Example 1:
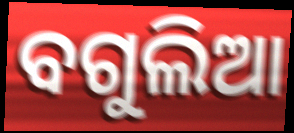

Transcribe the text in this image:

ବଗୁଲିଆ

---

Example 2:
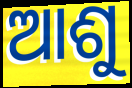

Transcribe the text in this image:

ଆଶୁ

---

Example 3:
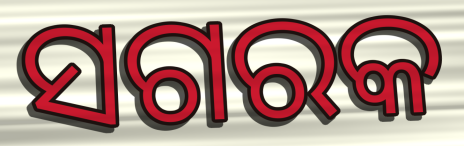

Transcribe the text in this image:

ସଗରକ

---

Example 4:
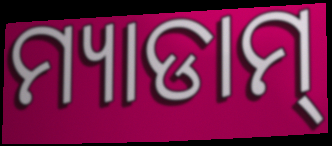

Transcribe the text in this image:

ମ୍ୟାଡାମ୍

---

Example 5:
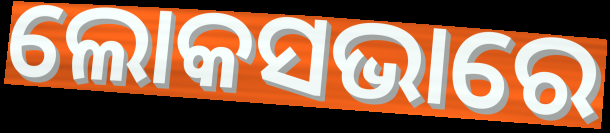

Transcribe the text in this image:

ଲୋକସଭାରେ